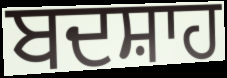
ਬਦਸ਼ਾਹ